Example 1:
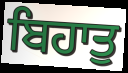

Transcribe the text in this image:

ਬਿਹਾਤੁ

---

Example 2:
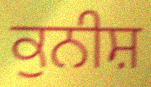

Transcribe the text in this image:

ਕੁਨੀਸ਼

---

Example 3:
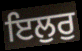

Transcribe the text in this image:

ਇਲੁਰੁ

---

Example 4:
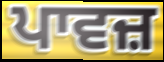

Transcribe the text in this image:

ਪਾਵਜ਼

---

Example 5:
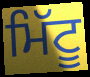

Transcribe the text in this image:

ਮਿੱਟੂ